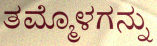
ತಮ್ಮೊಳಗನ್ನು